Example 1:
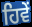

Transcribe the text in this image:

ਹਿਵੇਂ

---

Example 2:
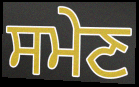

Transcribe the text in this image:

ਸਮੇਣ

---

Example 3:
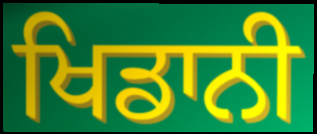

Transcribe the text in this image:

ਖਿਡਾਨੀ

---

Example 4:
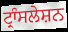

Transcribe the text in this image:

ਟ੍ਰਾੰਸਲੇਸ਼ਨ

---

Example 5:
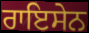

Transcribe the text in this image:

ਰਾਇਸੇਨ